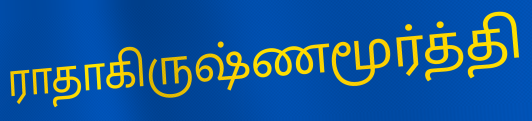
ராதாகிருஷ்ணமூர்த்தி